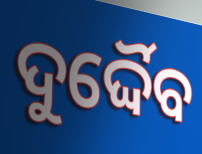
ଦୁର୍ଦ୍ଦୈବ